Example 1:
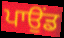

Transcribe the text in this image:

ਪਾਉਂਡ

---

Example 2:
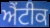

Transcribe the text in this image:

ਐਂਟੀਕ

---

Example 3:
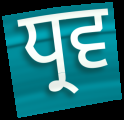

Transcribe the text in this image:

ਧ੍ਰਵ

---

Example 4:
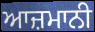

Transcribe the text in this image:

ਆਜ਼ਮਾਨੀ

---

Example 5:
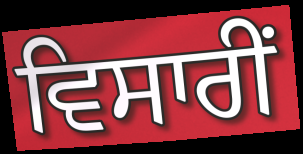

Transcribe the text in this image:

ਵਿਸਾਰੀਂ